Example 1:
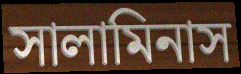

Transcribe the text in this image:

সালামিনাস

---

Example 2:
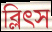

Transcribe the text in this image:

ব্লিৎস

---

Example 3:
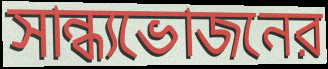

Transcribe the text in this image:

সান্ধ্যভোজনের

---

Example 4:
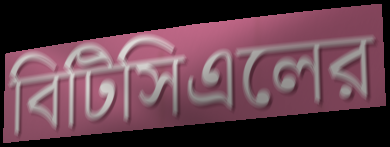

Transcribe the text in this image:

বিটিসিএলের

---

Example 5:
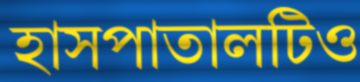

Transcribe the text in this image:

হাসপাতালটিও